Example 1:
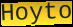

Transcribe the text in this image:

Hoyto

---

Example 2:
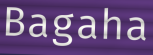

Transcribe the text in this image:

Bagaha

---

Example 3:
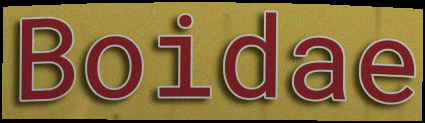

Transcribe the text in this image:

Boidae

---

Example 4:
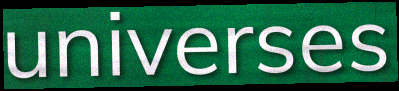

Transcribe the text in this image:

universes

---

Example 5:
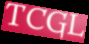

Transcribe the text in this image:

TCGL